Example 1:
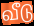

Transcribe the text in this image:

வீடு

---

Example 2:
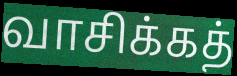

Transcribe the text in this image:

வாசிக்கத்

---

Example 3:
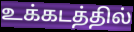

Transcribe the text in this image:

உக்கடத்தில்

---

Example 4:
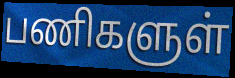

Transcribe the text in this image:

பணிகளுள்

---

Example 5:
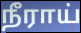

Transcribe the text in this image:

நீராய்